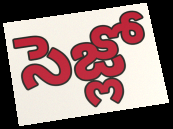
సెజ్లో